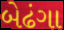
બેઢંગા